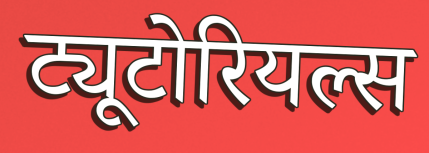
ट्यूटोरियल्स